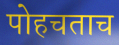
पोहचताच